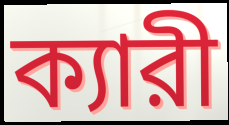
ক্যারী